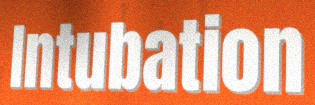
Intubation